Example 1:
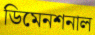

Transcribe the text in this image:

ডিমেনশনাল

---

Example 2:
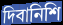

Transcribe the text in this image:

দিবানিশি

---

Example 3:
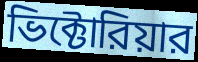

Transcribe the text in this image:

ভিক্টোরিয়ার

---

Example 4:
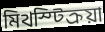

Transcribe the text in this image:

মিথস্ট্ক্রিয়া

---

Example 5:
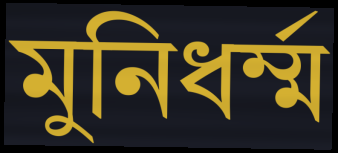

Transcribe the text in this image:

মুনিধর্ম্ম